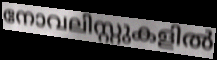
നോവലിസ്റ്റുകളിൽ